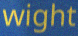
wight